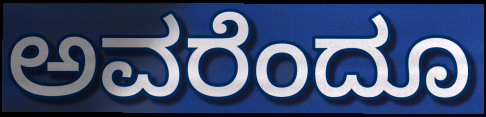
ಅವರೆಂದೂ